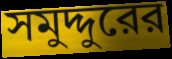
সমুদ্দুরের